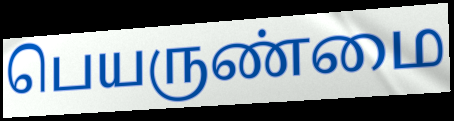
பெயருண்மை